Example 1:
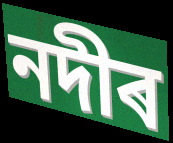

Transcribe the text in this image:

নদীৰ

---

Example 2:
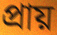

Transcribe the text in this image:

প্ৰায়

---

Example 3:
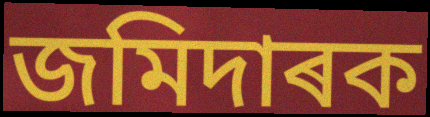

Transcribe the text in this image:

জমিদাৰক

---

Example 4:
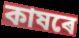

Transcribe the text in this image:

কাষৰে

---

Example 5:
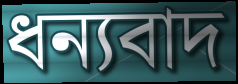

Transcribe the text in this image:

ধন্যবাদ